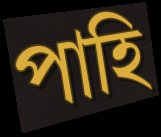
পাহি